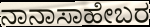
ನಾನಾಸಾಹೇಬರ